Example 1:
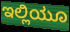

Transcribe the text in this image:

ಇಲ್ಲಿಯೂ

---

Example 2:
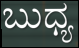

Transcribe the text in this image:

ಬುಧ್ಯ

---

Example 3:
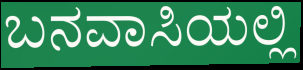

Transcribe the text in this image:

ಬನವಾಸಿಯಲ್ಲಿ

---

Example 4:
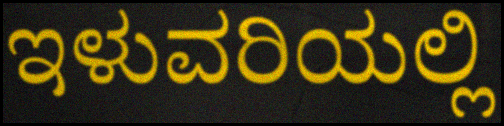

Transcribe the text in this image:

ಇಳುವರಿಯಲ್ಲಿ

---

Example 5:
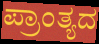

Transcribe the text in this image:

ಪ್ರಾಂತ್ಯದ